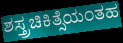
ಶಸ್ತ್ರಚಿಕಿತ್ಸೆಯಂತಹ